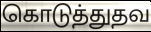
கொடுத்துதவ